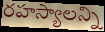
రహస్యాలన్ని